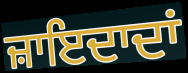
ਜ਼ਾਇਦਾਦਾਂ